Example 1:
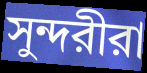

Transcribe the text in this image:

সুন্দরীরা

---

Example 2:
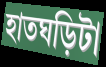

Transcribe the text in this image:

হাতঘড়িটা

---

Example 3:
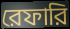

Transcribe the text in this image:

রেফারি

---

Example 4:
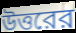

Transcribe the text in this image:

উত্তরের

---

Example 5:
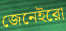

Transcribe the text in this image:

জেনেইরো